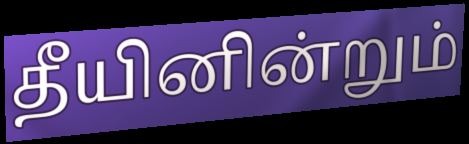
தீயினின்றும்